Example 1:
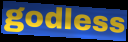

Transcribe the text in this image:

godless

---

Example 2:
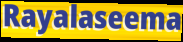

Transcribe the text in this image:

Rayalaseema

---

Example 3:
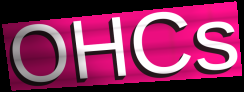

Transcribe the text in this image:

OHCs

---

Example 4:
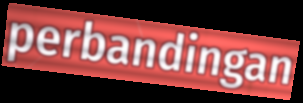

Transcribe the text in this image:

perbandingan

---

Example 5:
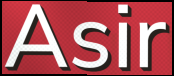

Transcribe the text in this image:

Asir